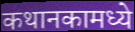
कथानकामध्ये